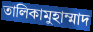
তালিকামুহাম্মাদ